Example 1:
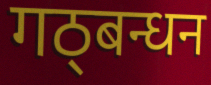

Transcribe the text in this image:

गठ्बन्धन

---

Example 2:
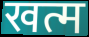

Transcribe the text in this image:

खत्म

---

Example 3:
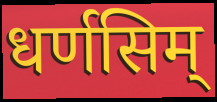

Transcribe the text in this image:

धर्णसिम्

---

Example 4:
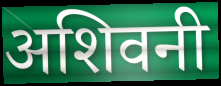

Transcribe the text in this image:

अशिवनी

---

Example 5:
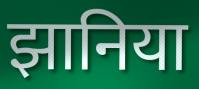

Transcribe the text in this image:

झानिया